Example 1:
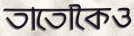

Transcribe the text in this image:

তাতোকৈও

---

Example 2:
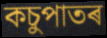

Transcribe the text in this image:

কচুপাতৰ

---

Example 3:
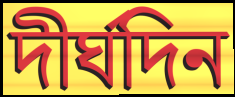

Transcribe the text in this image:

দীৰ্ঘদিন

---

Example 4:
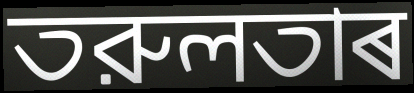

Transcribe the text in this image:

তৰুলতাৰ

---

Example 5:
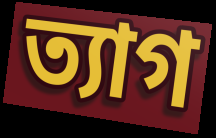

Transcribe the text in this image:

ত্যাগ